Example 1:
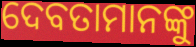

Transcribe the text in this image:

ଦେବତାମାନଙ୍କୁ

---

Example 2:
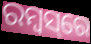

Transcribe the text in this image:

ରମ୍ବସ୍‌ରେ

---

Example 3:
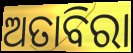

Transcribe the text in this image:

ଅତାବିରା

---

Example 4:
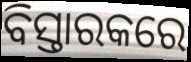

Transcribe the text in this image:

ବିସ୍ତାରକରେ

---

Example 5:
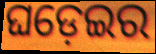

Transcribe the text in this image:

ଘଡ଼େଇର